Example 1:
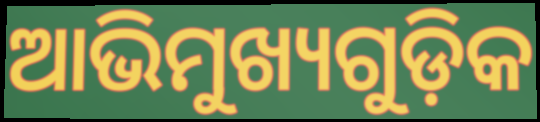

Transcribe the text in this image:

ଆଭିମୁଖ୍ୟଗୁଡ଼ିକ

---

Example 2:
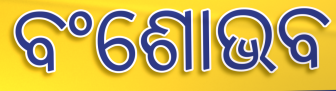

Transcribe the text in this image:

ବଂଶୋଭବ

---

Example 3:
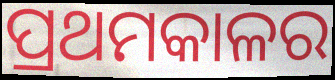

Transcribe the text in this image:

ପ୍ରଥମକାଳର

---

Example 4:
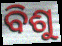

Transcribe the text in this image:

ବିଶୁ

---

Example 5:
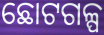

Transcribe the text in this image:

ଛୋଟଗଳ୍ପ